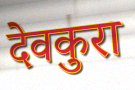
देवकुरा